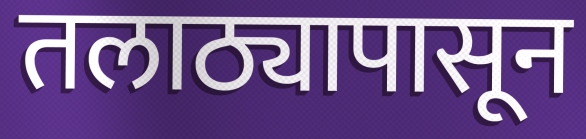
तलाठ्यापासून